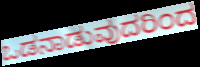
ಒಡನಾಡುವುದರಿಂದ